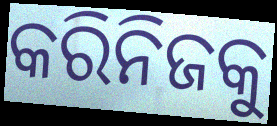
କରିନିଜକୁ